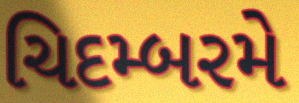
ચિદમ્બરમે